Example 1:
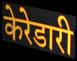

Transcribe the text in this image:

केरेडारी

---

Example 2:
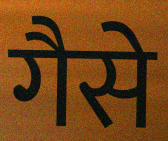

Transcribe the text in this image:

गैसे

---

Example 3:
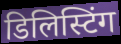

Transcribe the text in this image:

डिलिस्टिंग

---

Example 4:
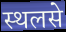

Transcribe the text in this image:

स्थलसे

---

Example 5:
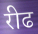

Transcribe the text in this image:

रीढ